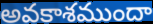
అవకాశముందా